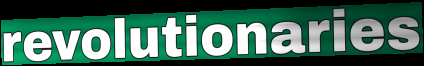
revolutionaries